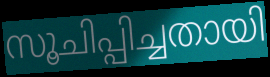
സൂചിപ്പിച്ചതായി